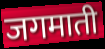
जगमाती